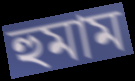
হুমাম